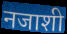
नजाशी